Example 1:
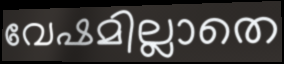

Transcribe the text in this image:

വേഷമില്ലാതെ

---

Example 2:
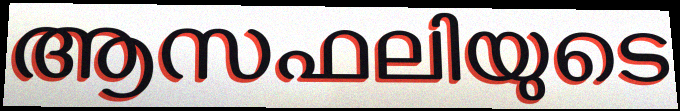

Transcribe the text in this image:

ആസഫലിയുടെ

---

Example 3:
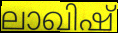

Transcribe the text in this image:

ലാഖിഷ്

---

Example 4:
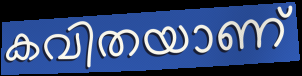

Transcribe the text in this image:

കവിതയാണ്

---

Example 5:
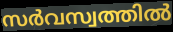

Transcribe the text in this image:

സർവസ്വത്തിൽ